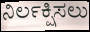
ನಿರ್ಲಕ್ಷಿಸಲು